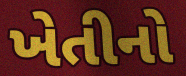
ખેતીનો